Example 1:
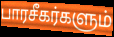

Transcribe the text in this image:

பாரசீகர்களும்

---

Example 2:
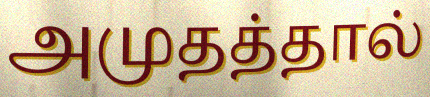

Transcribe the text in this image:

அமுதத்தால்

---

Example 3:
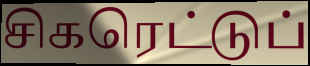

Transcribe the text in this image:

சிகரெட்டுப்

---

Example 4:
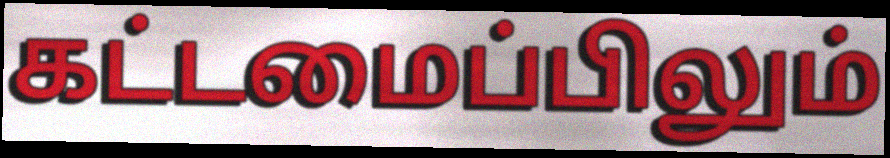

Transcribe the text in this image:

கட்டமைப்பிலும்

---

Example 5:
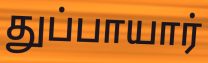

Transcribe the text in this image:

துப்பாயார்